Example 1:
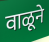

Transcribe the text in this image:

वाळूने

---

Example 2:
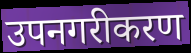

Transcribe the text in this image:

उपनगरीकरण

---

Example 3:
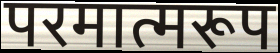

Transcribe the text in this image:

परमात्मरूप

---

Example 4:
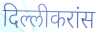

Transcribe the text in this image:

दिल्लीकरांस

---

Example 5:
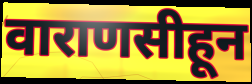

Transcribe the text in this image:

वाराणसीहून